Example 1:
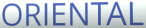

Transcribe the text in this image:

ORIENTAL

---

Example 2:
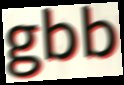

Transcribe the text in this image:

gbb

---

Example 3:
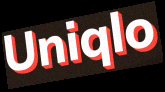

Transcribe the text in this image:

Uniqlo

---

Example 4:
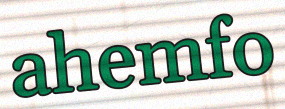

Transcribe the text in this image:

ahemfo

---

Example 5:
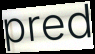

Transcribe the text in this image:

pred